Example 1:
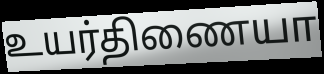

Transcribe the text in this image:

உயர்திணையா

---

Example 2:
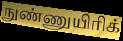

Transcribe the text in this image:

நுண்ணுயிரிக்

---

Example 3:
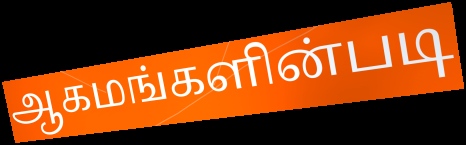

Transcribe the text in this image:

ஆகமங்களின்படி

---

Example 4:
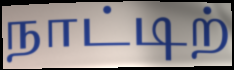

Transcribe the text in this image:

நாட்டிற்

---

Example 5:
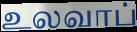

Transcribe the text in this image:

உலவாப்